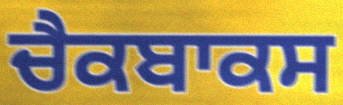
ਚੈਕਬਾਕਸ